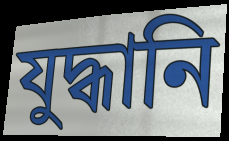
যুদ্ধানি